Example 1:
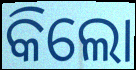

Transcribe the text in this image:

କିଲୋ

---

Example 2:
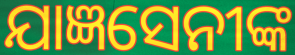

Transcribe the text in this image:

ଯାଜ୍ଞସେନୀଙ୍କ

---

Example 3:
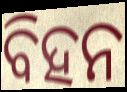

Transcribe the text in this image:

ବିହନ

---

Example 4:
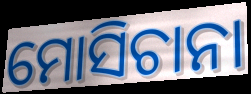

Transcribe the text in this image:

ମୋସିଚାନା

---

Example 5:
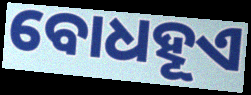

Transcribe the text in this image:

ବୋଧହୂଏ